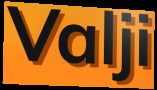
Valji